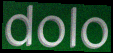
dolo